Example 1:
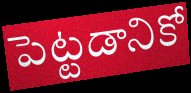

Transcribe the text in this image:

పెట్టడానికో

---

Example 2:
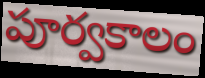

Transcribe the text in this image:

పూర్వకాలం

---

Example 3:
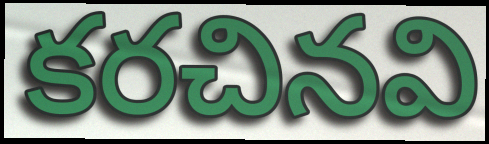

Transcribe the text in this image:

కరచినవి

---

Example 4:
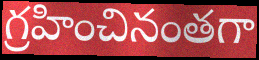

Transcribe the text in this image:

గ్రహించినంతగా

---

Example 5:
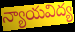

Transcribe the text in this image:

న్యాయవిద్య